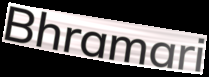
Bhramari